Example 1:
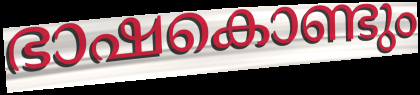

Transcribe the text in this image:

ഭാഷകൊണ്ടും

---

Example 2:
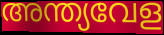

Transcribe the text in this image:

അന്ത്യവേള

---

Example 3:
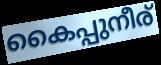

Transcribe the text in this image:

കൈപ്പുനീര്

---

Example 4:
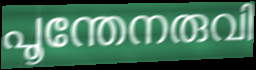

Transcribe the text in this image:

പൂന്തേനരുവി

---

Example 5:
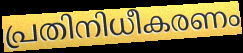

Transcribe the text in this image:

പ്രതിനിധീകരണം